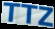
TTZ